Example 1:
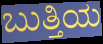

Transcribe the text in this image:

ಬುತ್ತಿಯ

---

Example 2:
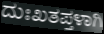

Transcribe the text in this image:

ದುಃಖತಪ್ತಳಾಗಿ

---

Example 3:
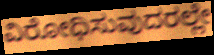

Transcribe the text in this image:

ವಿರೋಧಿಸುವುದರಲ್ಲೇ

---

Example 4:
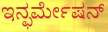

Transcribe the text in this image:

ಇನ್ಫರ್ಮೇಷನ್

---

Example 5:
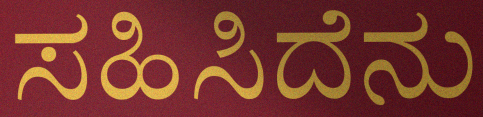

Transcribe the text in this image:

ಸಹಿಸಿದೆನು